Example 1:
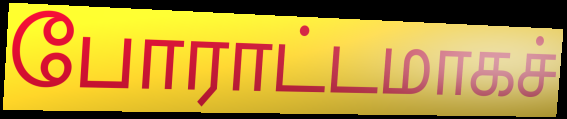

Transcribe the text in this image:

போராட்டமாகச்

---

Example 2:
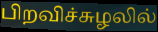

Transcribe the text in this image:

பிறவிச்சுழலில்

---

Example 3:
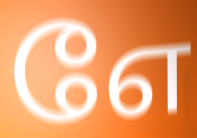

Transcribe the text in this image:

எே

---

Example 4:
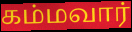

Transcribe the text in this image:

கம்மவார்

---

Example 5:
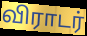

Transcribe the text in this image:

விராடர்